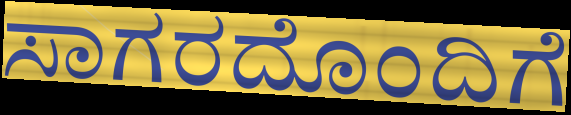
ಸಾಗರದೊಂದಿಗೆ